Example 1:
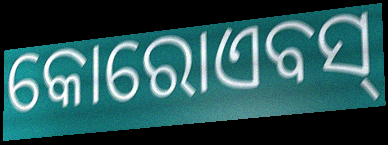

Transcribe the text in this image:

କୋରୋଏବସ୍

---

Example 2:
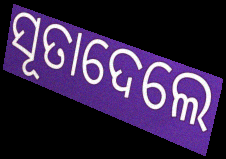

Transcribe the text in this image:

ସୂତାଦେଲେ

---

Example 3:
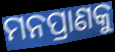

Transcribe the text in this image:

ମନପ୍ରାଣକୁ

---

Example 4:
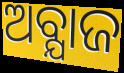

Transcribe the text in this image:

ଅବ୍ଯାଜ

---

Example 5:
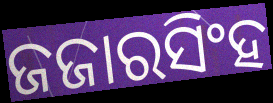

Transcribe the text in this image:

ଜଜାରସିଂହ